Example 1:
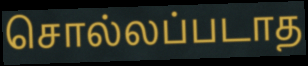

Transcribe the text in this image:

சொல்லப்படாத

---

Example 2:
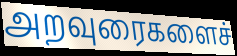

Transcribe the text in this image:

அறவுரைகளைச்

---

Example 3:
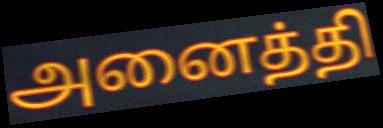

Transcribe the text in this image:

அனைத்தி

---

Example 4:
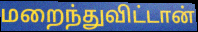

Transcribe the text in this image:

மறைந்துவிட்டான்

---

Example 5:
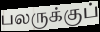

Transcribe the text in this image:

பலருக்குப்